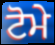
ਟੋਮੇ